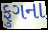
ફુગના